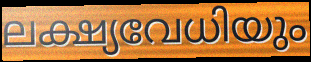
ലക്ഷ്യവേധിയും